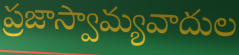
ప్రజాస్వామ్యవాదుల